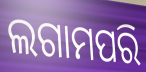
ଲଗାମପରି